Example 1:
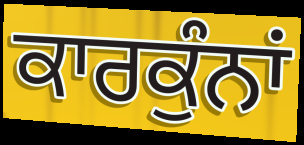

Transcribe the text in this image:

ਕਾਰਕੁੰਨਾਂ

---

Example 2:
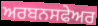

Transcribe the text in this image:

ਅਰਬਨਸਫੇਅਰ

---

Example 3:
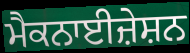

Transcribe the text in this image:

ਮੈਕਨਾਈਜ਼ੇਸ਼ਨ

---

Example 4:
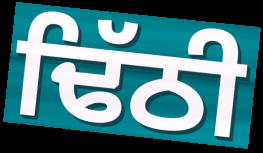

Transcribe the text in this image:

ਢਿੱਠੀ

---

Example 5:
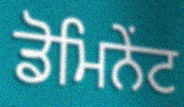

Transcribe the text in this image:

ਡੋਮਿਨੇਂਟ